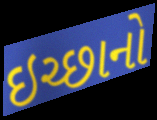
ઇચ્છાનો